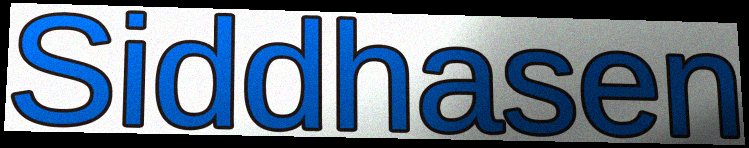
Siddhasen